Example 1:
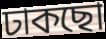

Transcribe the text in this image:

ঢাকছো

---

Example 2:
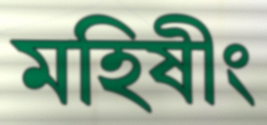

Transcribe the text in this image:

মহিষীং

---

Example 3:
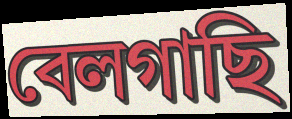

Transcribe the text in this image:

বেলগাছি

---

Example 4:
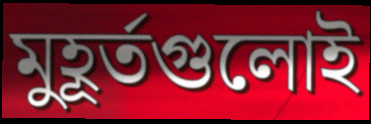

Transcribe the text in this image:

মুহূর্তগুলোই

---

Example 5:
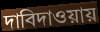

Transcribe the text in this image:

দাবিদাওয়ায়